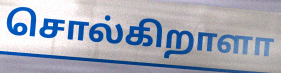
சொல்கிறாளா